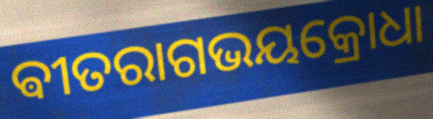
ଵୀତରାଗଭୟକ୍ରୋଧା